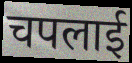
चपलाई